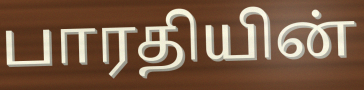
பாரதியின்